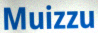
Muizzu